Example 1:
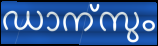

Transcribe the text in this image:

ഡാന്സും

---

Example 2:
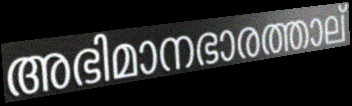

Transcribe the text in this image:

അഭിമാനഭാരത്താല്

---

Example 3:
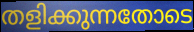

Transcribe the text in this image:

തളിക്കുന്നതോടെ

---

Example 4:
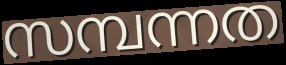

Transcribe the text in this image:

സമ്പന്നത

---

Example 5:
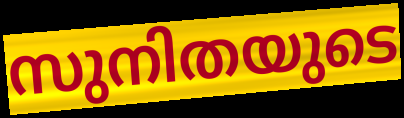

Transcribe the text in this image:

സുനിതയുടെ